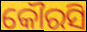
କୌରସି